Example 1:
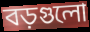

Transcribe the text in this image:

বড়গুলো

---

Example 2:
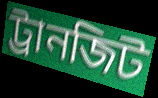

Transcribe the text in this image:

ট্রানজিট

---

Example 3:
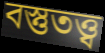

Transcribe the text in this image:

বস্তুতত্ত্ব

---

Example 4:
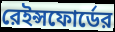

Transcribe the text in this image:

রেইন্সফোর্ডের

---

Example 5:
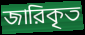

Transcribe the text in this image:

জারিকৃত